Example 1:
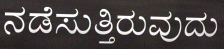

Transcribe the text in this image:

ನಡೆಸುತ್ತಿರುವುದು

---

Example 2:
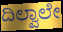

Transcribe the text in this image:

ದಿಲ್ವಾಲೇ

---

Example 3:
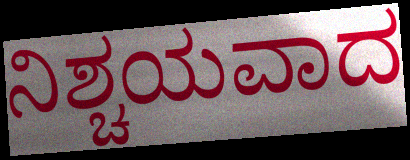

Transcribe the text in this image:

ನಿಶ್ಚಯವಾದ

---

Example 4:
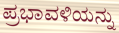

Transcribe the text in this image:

ಪ್ರಭಾವಳಿಯನ್ನು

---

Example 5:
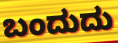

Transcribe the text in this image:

ಬಂದುದು